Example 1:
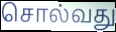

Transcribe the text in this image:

சொல்வது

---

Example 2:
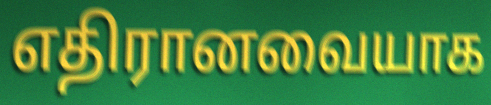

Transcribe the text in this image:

எதிரானவையாக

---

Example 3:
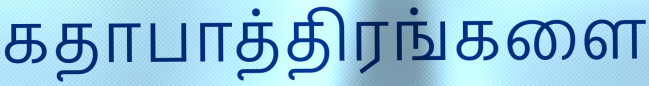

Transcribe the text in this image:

கதாபாத்திரங்களை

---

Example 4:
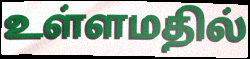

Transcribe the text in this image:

உள்ளமதில்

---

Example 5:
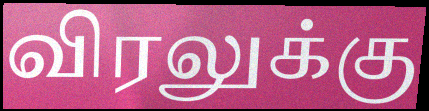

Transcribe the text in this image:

விரலுக்கு